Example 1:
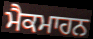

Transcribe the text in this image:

ਮੈਕਮਾਹਨ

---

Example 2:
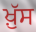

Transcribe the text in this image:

ਖ਼ੁੱਸ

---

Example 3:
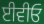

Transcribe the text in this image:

ਈਵੀਓ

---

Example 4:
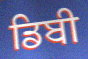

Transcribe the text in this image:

ਡਿਬੀ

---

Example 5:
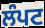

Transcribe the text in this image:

ਲੰਪਟ